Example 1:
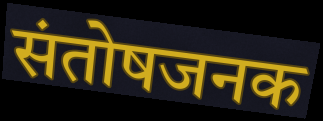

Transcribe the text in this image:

संतोषजनक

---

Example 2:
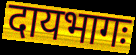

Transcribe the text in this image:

दायभागः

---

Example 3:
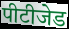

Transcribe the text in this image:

पीटीजेड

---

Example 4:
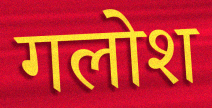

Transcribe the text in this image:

गलोश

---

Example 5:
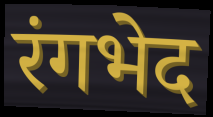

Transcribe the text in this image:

रंगभेद